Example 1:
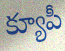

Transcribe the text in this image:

క్యూపీ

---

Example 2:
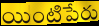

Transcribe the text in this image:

యింటిపేరు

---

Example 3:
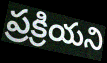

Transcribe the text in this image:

ప్రక్రియని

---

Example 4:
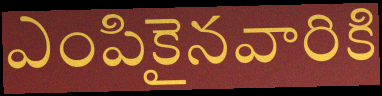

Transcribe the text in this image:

ఎంపికైనవారికి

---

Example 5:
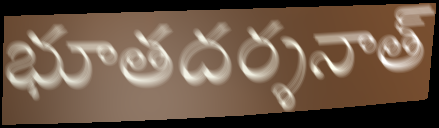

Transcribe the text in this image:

భూతదర్శనాత్